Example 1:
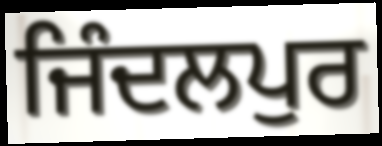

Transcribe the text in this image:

ਜਿੰਦਲਪੁਰ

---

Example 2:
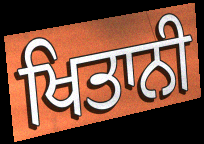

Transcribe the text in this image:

ਖਿਤਾਨੀ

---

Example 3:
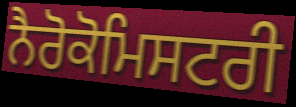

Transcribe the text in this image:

ਨੈਰੋਕੋਮਿਸਟਰੀ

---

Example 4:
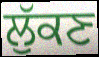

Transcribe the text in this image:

ਲੁੱਕਣ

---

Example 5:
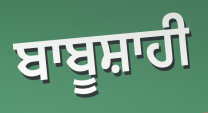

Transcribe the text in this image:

ਬਾਬੂਸ਼ਾਹੀ